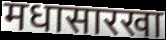
मधासारखा